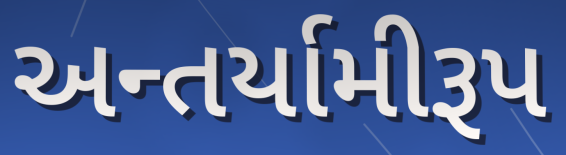
અન્તર્યામીરૂપ